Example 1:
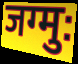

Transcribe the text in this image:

जग्मुः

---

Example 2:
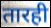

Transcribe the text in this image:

तारही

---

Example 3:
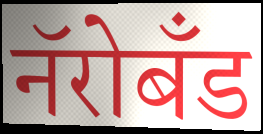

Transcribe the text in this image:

नॅरोबँड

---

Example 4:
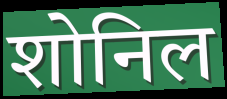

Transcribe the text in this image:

शोनिल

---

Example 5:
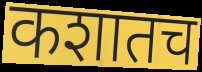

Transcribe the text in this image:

कशातच